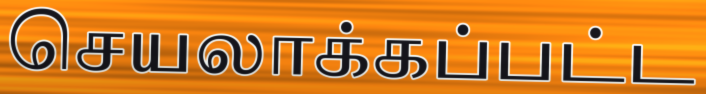
செயலாக்கப்பட்ட